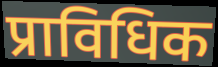
प्राविधिक